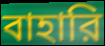
বাহারি